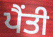
ਪੈਂਤੀ